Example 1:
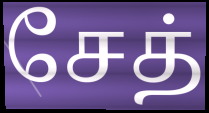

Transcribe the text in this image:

சேத்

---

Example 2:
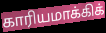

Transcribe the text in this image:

காரியமாக்கிக்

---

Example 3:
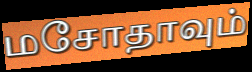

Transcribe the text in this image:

மசோதாவும்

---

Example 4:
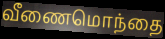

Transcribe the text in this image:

வீணைமொந்தை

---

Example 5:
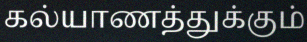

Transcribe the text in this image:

கல்யாணத்துக்கும்